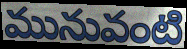
మునువంటి